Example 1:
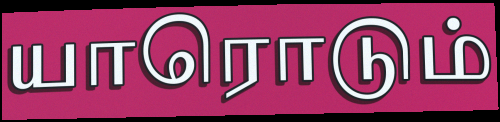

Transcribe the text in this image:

யாரொடும்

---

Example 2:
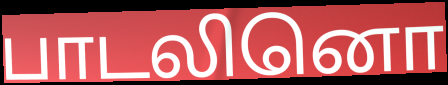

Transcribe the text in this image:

பாடலினொ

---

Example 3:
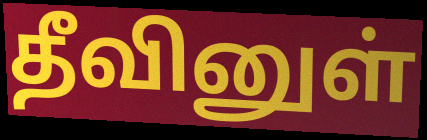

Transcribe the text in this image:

தீவினுள்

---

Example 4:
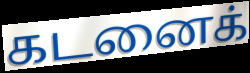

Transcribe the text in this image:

கடனைக்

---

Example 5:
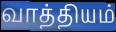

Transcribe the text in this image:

வாத்தியம்